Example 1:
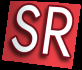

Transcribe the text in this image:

SR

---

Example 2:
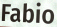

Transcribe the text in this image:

Fabio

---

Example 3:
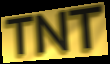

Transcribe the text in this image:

TNT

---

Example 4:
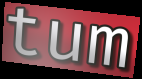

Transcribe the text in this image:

tum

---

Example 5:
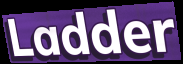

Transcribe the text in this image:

Ladder